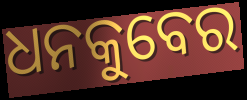
ଧନକୁବେର